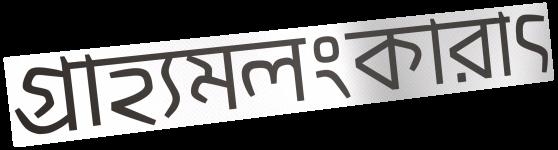
গ্রাহ্যমলংকারাৎ